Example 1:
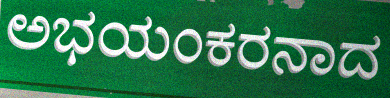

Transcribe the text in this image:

ಅಭಯಂಕರನಾದ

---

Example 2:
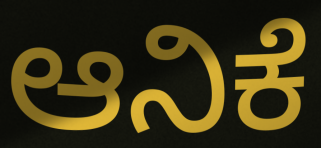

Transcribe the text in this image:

ಆನಿಕೆ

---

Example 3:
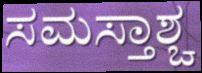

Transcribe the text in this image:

ಸಮಸ್ತಾಶ್ಚ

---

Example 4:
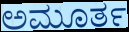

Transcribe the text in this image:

ಅಮೂರ್ತ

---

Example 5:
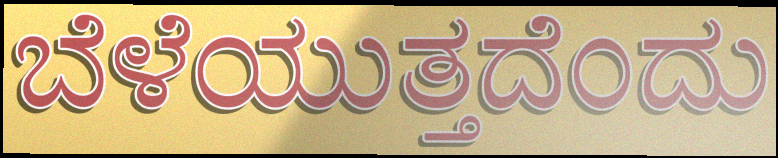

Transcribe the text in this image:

ಬೆಳೆಯುತ್ತದೆಂದು